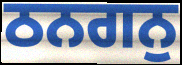
ਠਨਗਨੁ